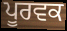
ਪੂਰਵਕ